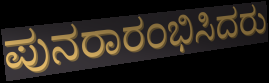
ಪುನರಾರಂಭಿಸಿದರು